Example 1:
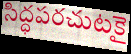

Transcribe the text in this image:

సిద్ధపరచుటకై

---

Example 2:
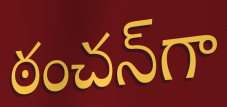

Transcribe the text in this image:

ఠంచన్‌గా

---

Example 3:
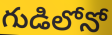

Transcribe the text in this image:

గుడిలోనో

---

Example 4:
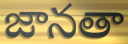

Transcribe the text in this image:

జానతా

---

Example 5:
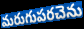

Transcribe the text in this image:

మరుగుపరచెను